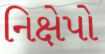
નિક્ષેપો